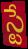
స్టే